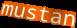
mustan